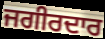
ਜਗੀਰਦਾਰ